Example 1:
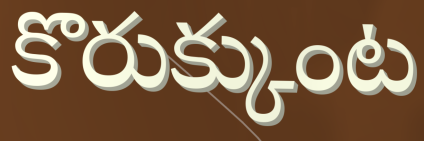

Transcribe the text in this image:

కొరుక్కుంట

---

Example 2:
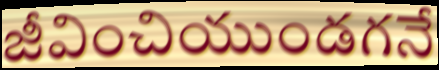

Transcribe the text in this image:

జీవించియుండగనే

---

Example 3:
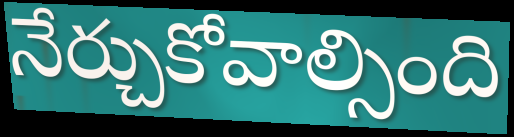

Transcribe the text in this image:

నేర్చుకోవాల్సింది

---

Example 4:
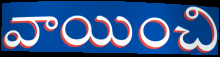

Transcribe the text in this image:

వాయించి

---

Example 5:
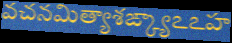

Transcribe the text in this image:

వచనమిత్యాశఙ్క్యాఽఽహ